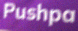
Pushpa